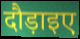
दौड़ाइए